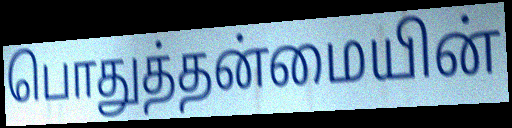
பொதுத்தன்மையின்